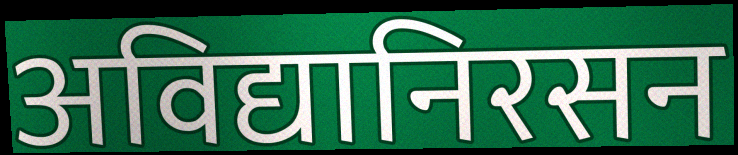
अविद्यानिरसन